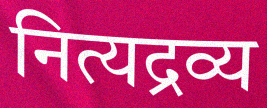
नित्यद्रव्य